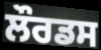
ਲੌਰਡਸ